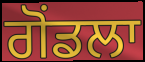
ਗੋਂਡਲਾ